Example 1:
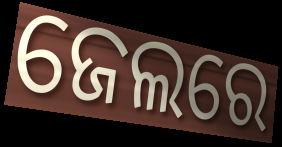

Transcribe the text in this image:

ଜେଲରେ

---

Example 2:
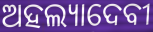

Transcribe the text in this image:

ଅହଲ୍ୟାଦେବୀ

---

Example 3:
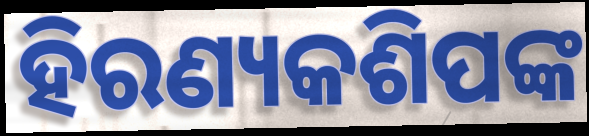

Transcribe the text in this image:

ହିରଣ୍ୟକଶିପଙ୍କ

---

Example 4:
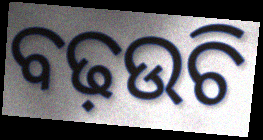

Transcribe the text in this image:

ବଢ଼ଉଚି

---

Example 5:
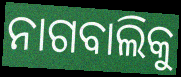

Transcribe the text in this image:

ନାଗବାଲିକୁ